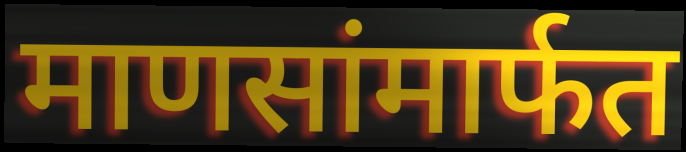
माणसांमार्फत